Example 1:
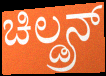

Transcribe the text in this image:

ಚಿಲ್ಡ್ರನ್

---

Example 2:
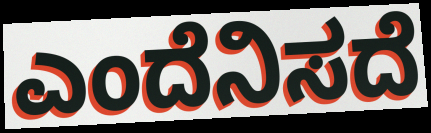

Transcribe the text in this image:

ಎಂದೆನಿಸದೆ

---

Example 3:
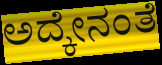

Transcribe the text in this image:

ಅದ್ಕೇನಂತೆ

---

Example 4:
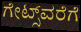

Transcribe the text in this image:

ಗೇಟ್ಸ್‌ವರೆಗೆ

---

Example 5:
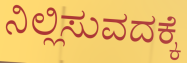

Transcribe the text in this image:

ನಿಲ್ಲಿಸುವದಕ್ಕೆ